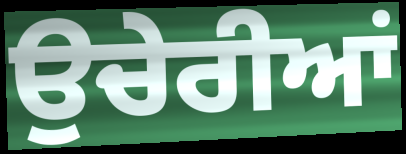
ਉਚੇਰੀਆਂ